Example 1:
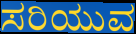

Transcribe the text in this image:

ಸರಿಯುವ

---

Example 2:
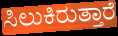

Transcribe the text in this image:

ಸಿಲುಕಿರುತ್ತಾರೆ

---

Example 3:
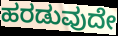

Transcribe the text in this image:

ಹರಡುವುದೇ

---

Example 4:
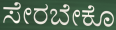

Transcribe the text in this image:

ಸೇರಬೇಕೊ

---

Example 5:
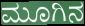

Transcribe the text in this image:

ಮೂಗಿನ